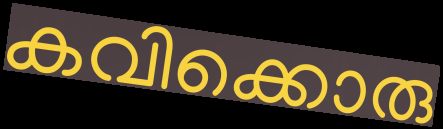
കവിക്കൊരു